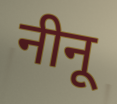
नीनू